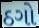
ઠગો